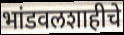
भांडवलशाहीचे